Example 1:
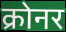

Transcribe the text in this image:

क्रोनर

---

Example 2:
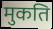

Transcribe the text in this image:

मुकति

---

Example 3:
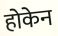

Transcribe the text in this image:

होकेन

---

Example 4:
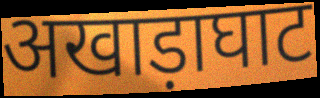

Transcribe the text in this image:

अखाड़ाघाट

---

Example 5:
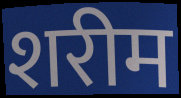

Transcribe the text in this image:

शरीम